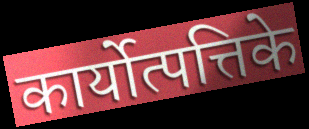
कार्योत्पत्तिके